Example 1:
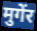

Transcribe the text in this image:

मुगेंर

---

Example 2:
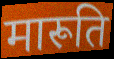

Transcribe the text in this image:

मारूति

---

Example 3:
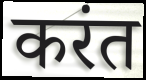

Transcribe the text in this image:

करंत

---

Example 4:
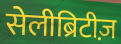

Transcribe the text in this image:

सेलीब्रिटीज़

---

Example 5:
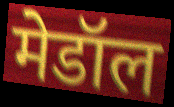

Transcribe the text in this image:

मेडॉल